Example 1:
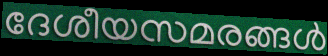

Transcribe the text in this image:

ദേശീയസമരങ്ങൾ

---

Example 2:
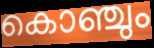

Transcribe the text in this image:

കൊഞ്ചും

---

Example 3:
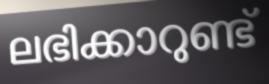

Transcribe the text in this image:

ലഭിക്കാറുണ്ട്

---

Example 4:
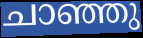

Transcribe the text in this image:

ചാഞ്ഞു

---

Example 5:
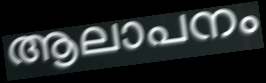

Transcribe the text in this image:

ആലാപനം